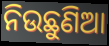
ନିଉଛୁଣିଆ